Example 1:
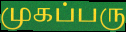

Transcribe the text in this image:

முகப்பரு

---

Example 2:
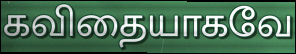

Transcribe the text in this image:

கவிதையாகவே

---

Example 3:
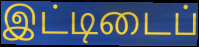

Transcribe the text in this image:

இட்டிடைப்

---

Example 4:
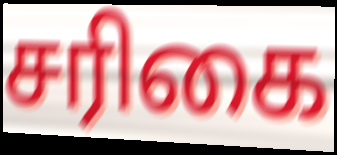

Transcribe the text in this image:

சரிகை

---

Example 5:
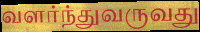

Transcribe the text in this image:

வளர்ந்துவருவது